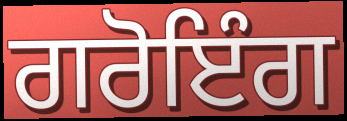
ਗਰੋਇੰਗ